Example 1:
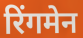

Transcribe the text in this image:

रिंगमेन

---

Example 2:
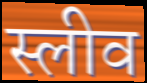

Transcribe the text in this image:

स्लीव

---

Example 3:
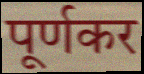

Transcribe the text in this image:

पूर्णकर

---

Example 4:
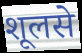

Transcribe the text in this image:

शूलसे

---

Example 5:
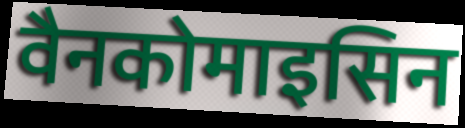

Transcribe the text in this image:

वैनकोमाइसिन